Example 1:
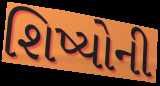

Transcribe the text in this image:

શિષ્યોની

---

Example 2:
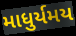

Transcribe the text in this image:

માધુર્યમય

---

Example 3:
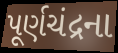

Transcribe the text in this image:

પૂર્ણચંદ્રના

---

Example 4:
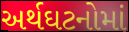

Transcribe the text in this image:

અર્થઘટનોમાં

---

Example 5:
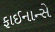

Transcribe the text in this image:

ફાઈનાન્સે